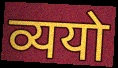
व्ययो